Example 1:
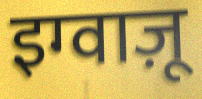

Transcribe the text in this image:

इग्वाज़ू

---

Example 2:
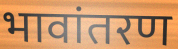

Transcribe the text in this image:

भावांतरण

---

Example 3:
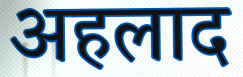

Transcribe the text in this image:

अहलाद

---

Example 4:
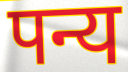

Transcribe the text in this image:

पन्य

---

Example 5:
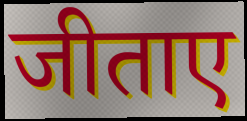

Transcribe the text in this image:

जीताए